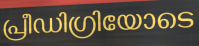
പ്രീഡിഗ്രിയോടെ